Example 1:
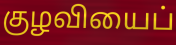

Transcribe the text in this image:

குழவியைப்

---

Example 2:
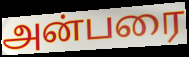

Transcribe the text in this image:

அன்பரை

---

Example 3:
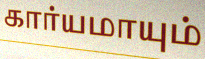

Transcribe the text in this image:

கார்யமாயும்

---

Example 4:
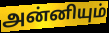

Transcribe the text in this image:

அன்னியும்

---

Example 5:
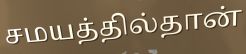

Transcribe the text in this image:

சமயத்தில்தான்